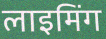
लाइमिंग